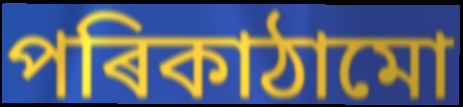
পৰিকাঠামো